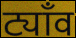
ट्याँव